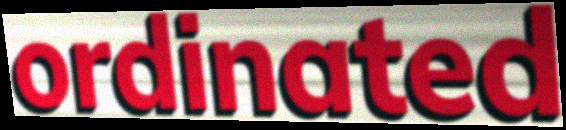
ordinated